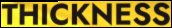
THICKNESS